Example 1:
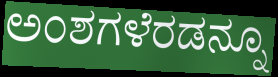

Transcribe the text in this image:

ಅಂಶಗಳೆರಡನ್ನೂ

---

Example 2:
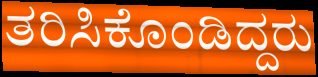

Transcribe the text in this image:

ತರಿಸಿಕೊಂಡಿದ್ದರು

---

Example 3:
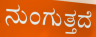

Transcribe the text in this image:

ನುಂಗುತ್ತದೆ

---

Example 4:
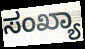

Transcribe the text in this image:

ಸಂಖ್ಯಾ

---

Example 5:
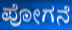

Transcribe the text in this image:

ಪೋಗನೆ